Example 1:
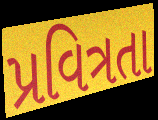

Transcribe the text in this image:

પ્રવિત્રતા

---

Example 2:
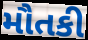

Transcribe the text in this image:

મૌતકી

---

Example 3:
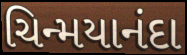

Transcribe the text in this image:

ચિન્મયાનંદા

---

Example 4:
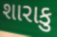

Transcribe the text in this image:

શારાકુ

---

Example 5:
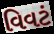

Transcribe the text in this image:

વિવટં